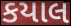
કયાલ